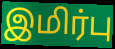
இமிர்பு